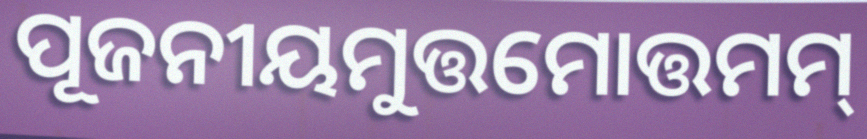
ପୂଜନୀୟମୁତ୍ତମୋତ୍ତମମ୍